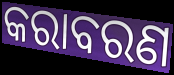
କରାବରଣ